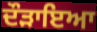
ਦੌੜਾਇਆ